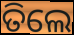
ତିଲେ